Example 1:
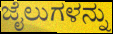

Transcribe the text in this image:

ಜೈಲುಗಳನ್ನು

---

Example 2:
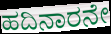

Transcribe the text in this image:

ಹದಿನಾರನೇ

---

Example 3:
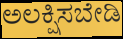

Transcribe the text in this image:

ಅಲಕ್ಷಿಸಬೇಡಿ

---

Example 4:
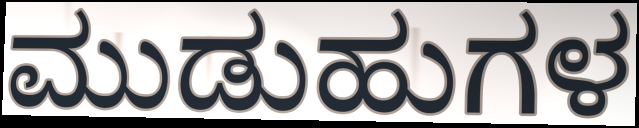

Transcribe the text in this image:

ಮುಡುಹುಗಳ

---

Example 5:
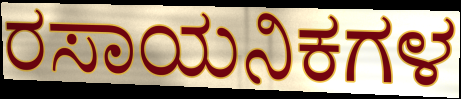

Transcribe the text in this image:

ರಸಾಯನಿಕಗಳ